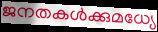
ജനതകൾക്കുമധ്യേ